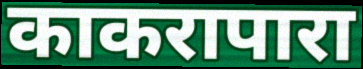
काकरापारा